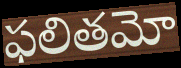
ఫలితమో